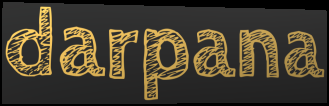
darpana